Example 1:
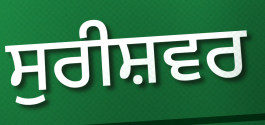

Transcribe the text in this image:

ਸੁਰੀਸ਼ਵਰ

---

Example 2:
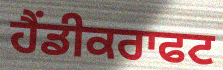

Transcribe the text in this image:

ਹੈਂਡੀਕਰਾਫਟ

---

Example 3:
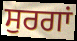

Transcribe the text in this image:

ਸੁਰਗਾਂ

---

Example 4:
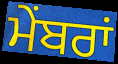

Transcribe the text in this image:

ਮੇਂਬਰਾਂ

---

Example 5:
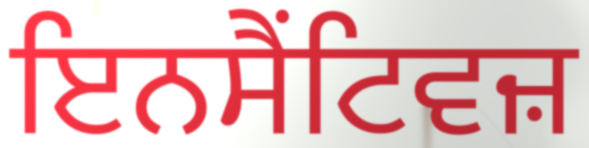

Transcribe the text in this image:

ਇਨਸੈਂਟਿਵਜ਼